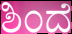
ಶಿಂದೆ